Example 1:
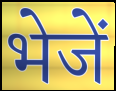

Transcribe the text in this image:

भेजें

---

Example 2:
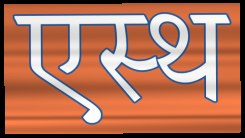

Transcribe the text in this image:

एस्थ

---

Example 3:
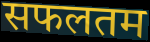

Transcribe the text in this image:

सफलतम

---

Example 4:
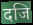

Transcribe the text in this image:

दजि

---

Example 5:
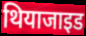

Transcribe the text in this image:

थियाजाइड